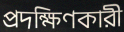
প্রদক্ষিণকারী